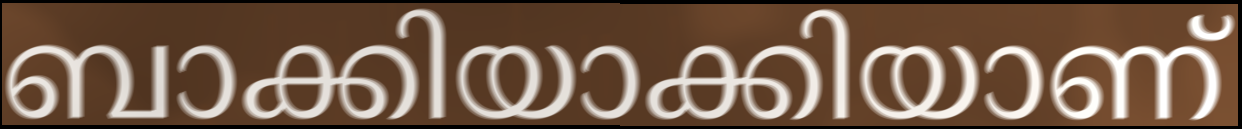
ബാക്കിയാക്കിയാണ്